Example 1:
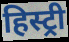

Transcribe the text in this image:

हिस्ट्री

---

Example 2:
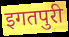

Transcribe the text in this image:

इगतपुरी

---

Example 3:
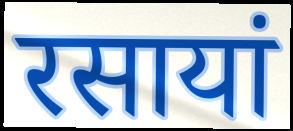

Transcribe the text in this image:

रसायां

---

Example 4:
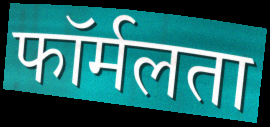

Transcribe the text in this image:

फॉर्मलता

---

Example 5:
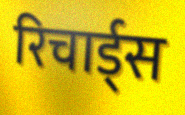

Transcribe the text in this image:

रिचार्ड्स